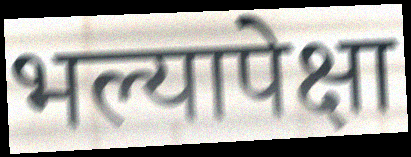
भल्यापेक्षा